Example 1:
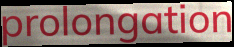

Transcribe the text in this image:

prolongation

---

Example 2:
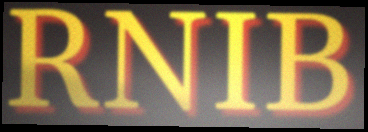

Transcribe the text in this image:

RNIB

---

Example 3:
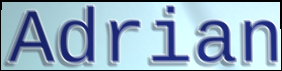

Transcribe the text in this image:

Adrian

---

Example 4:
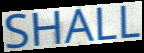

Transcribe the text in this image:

SHALL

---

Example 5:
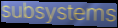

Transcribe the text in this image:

subsystems